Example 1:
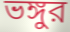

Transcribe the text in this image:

ভঙ্গুর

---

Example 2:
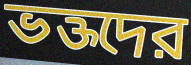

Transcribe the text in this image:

ভক্তদের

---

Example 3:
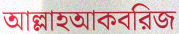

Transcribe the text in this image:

আল্লাহআকবরিজ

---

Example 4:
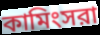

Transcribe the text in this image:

কামিংসরা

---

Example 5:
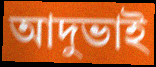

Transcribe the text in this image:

আদুভাই